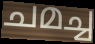
ചമച്ച